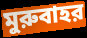
মুরুবাহর